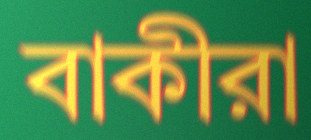
বাকীরা